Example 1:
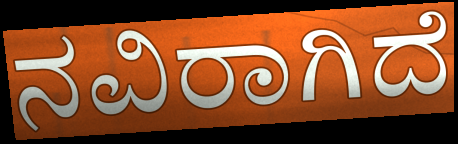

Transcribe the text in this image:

ನವಿರಾಗಿದೆ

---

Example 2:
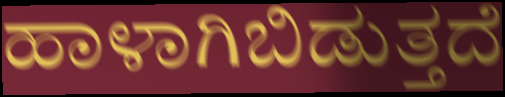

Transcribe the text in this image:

ಹಾಳಾಗಿಬಿಡುತ್ತದೆ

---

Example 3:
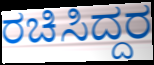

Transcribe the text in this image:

ರಚಿಸಿದ್ದರ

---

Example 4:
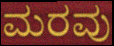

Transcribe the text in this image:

ಮರವು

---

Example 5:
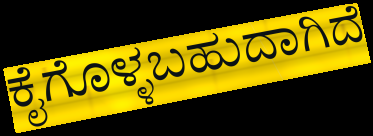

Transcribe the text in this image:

ಕೈಗೊಳ್ಳಬಹುದಾಗಿದೆ